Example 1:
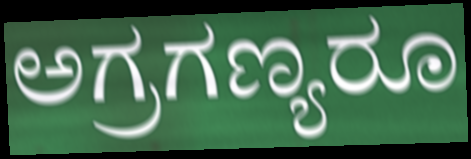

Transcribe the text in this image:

ಅಗ್ರಗಣ್ಯರೂ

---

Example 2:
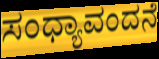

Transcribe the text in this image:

ಸಂಧ್ಯಾವಂದನೆ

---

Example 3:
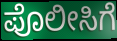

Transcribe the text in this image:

ಪೊಲೀಸಿಗೆ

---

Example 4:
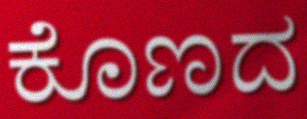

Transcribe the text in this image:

ಕೊಣದ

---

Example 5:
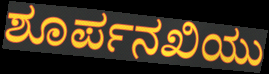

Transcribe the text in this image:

ಶೂರ್ಪನಖಿಯು